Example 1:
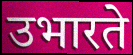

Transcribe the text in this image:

उभारते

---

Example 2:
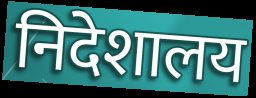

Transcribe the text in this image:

निदेशालय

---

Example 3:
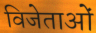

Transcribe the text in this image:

विजेताओं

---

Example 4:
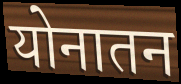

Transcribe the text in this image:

योनातन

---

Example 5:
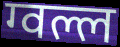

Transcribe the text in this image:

ग्वल्ल